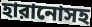
হারানোসহ